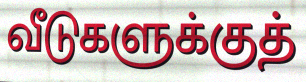
வீடுகளுக்குத்